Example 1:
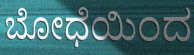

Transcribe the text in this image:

ಬೋಧೆಯಿಂದ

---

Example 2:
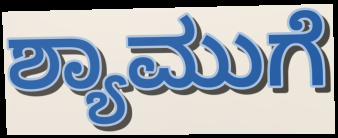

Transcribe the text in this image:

ಶ್ಯಾಮುಗೆ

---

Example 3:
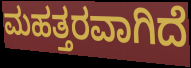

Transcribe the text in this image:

ಮಹತ್ತರವಾಗಿದೆ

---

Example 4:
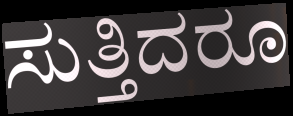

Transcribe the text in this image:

ಸುತ್ತಿದರೂ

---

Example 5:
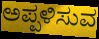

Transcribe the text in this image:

ಅಪ್ಪಳಿಸುವ